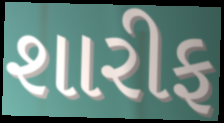
શારીફ